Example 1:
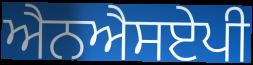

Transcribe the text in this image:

ਐਨਐਸਏਪੀ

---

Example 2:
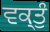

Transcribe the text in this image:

ਵਕ੍ਤੁੰ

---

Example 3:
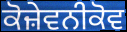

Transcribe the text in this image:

ਕੋਜ਼ੇਵਨੀਕੋਵ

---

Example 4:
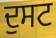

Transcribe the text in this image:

ਦੁਸਟ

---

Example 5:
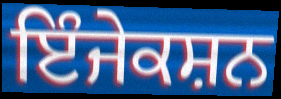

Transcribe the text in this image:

ਇੰਜੇਕਸ਼ਨ